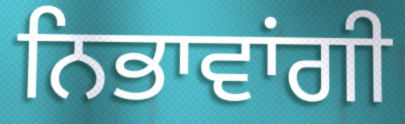
ਨਿਭਾਵਾਂਗੀ